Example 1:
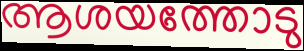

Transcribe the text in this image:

ആശയത്തോടു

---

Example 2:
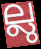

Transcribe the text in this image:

ല്ലു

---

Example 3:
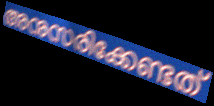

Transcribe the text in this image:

അനുസരിക്കേണ്ടത്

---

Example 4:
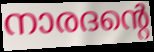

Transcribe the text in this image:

നാരദന്റെ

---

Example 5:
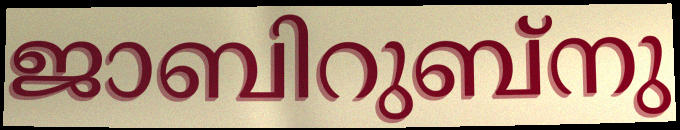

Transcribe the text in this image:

ജാബിറുബ്നു